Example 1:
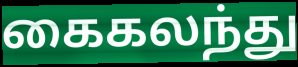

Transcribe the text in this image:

கைகலந்து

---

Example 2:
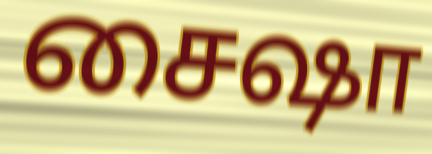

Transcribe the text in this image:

சைஷா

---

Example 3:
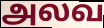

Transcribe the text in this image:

அலவ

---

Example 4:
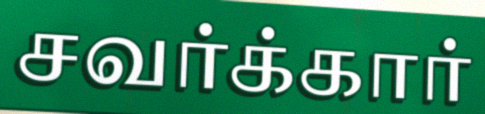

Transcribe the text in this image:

சவர்க்கார்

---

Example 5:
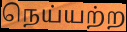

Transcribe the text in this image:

நெய்யற்ற